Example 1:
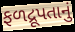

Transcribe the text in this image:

ફળદ્રૂપતાનું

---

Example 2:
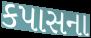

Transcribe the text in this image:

કપાસના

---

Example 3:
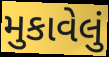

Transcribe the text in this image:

મુકાવેલું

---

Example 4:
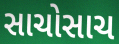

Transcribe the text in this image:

સાચોસાચ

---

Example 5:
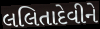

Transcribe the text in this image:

લલિતાદેવીને